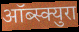
ऑब्स्क्युरा